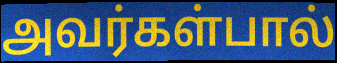
அவர்கள்பால்